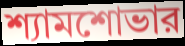
শ্যামশোভার